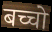
बच्चो